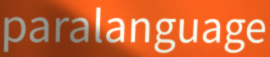
paralanguage